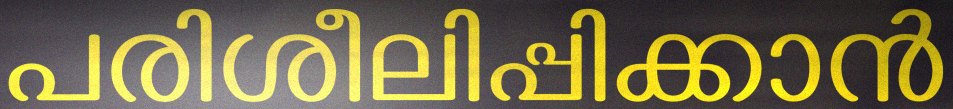
പരിശീലിപ്പിക്കാൻ